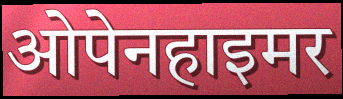
ओपेनहाइमर